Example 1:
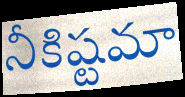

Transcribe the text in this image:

నీకిష్టమా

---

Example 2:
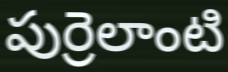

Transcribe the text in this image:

పుర్రెలాంటి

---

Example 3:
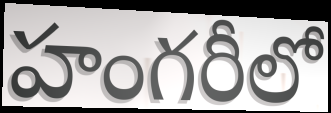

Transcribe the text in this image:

హంగరీలో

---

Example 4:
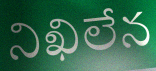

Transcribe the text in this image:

నిఖిలేన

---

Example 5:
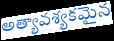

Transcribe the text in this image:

అత్యావశ్యకమైన